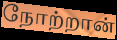
நோற்றான்